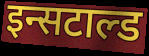
इन्सटाल्ड